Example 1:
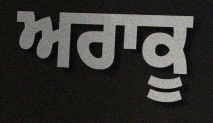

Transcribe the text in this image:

ਅਰਾਕੂ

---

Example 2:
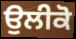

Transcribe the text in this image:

ਉਲੀਕੋ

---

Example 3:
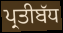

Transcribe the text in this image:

ਪ੍ਰਤੀਬੱਧ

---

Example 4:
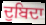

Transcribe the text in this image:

ਦੁਬਿਦਾ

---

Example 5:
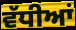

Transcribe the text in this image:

ਵੱਧੀਆਂ